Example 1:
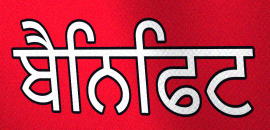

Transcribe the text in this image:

ਬੈਨਿਫਿਟ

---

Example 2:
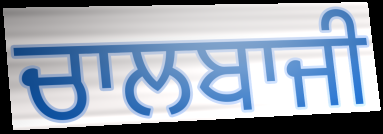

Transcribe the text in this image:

ਚਾਲਬਾਜੀ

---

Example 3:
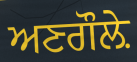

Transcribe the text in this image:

ਅਣਗੌਲ਼ੇ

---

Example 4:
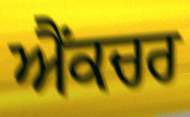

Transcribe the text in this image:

ਐਂਕਚਰ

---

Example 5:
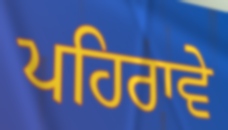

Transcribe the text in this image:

ਪਹਿਰਾਵੇ